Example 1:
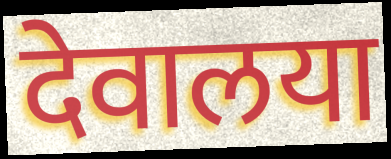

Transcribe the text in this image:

देवालया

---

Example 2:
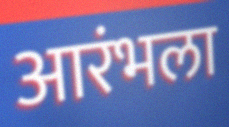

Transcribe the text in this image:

आरंभला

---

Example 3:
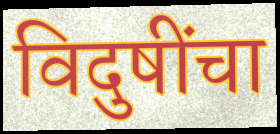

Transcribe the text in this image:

विदुषींचा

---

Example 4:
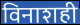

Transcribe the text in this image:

विनाशही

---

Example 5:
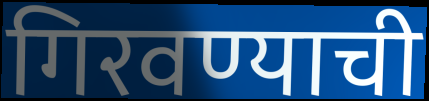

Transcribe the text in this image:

गिरवण्याची